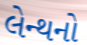
લેન્થનો